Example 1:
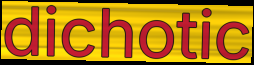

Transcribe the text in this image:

dichotic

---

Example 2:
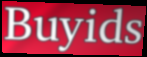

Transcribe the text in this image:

Buyids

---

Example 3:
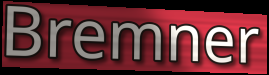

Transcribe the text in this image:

Bremner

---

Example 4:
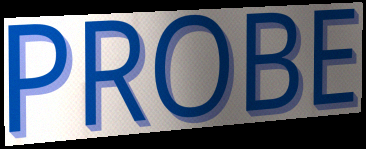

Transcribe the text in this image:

PROBE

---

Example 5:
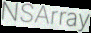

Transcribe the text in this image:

NSArray